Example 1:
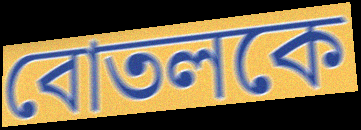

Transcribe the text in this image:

বোতলকে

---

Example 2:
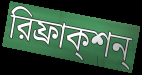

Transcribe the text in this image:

রিফ্রাক্শন্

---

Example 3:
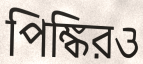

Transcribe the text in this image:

পিঙ্কিরও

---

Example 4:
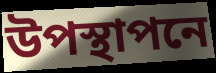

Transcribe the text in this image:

উপস্থাপনে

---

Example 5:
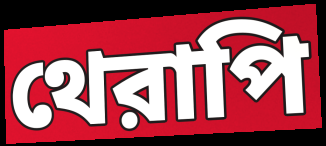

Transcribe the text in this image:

থেরাপি